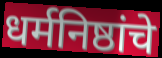
धर्मनिष्ठांचे